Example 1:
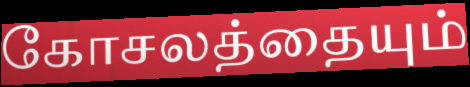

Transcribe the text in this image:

கோசலத்தையும்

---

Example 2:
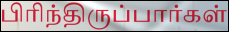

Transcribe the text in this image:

பிரிந்திருப்பார்கள்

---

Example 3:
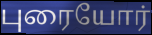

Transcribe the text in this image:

புரையோர்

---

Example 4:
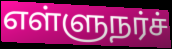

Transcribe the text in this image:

எள்ளுநர்ச்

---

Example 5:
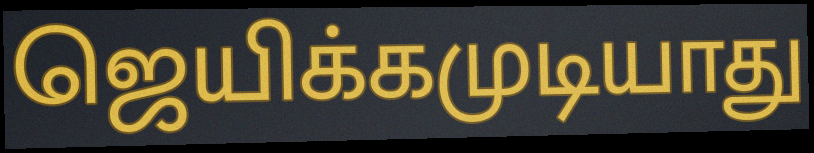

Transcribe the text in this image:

ஜெயிக்கமுடியாது